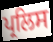
ਪ੍ਰਲਿਸ